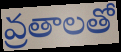
వ్రతాలతో